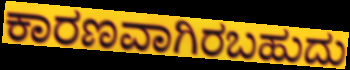
ಕಾರಣವಾಗಿರಬಹುದು